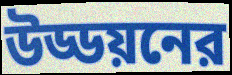
উড্ডয়নের